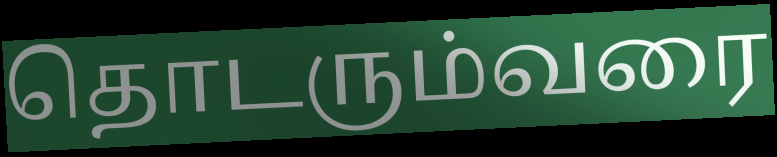
தொடரும்வரை